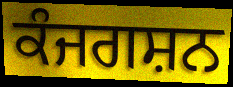
ਕੰਜਗਸ਼ਨ